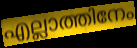
എല്ലാത്തിനേം